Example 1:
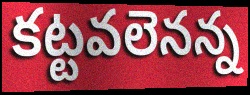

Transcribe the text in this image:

కట్టవలెనన్న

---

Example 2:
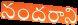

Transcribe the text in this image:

నందరాని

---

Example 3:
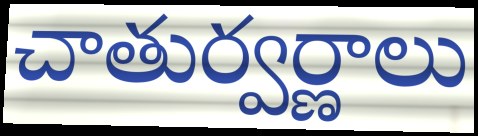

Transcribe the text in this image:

చాతుర్వర్ణాలు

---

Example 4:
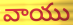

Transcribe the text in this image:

వాయు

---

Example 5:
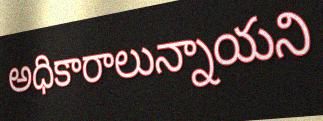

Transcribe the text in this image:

అధికారాలున్నాయని